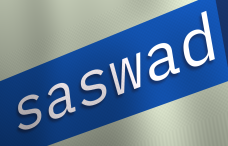
saswad